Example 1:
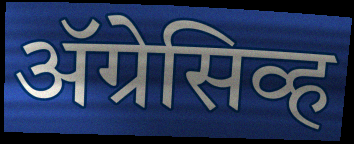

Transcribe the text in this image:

ॲग्रेसिव्ह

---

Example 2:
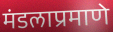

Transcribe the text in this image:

मंडलाप्रमाणे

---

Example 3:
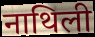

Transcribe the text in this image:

नाथिली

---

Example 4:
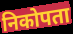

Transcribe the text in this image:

निकोपता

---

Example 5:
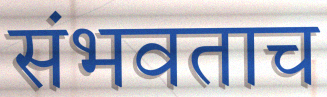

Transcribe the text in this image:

संभवताच